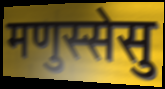
मणुस्सेसु